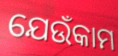
ଯେଉଁକାମ